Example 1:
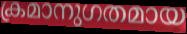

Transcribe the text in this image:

ക്രമാനുഗതമായ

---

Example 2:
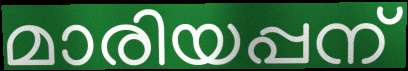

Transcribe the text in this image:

മാരിയപ്പന്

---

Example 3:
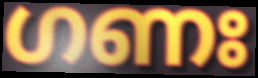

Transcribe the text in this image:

ഗണഃ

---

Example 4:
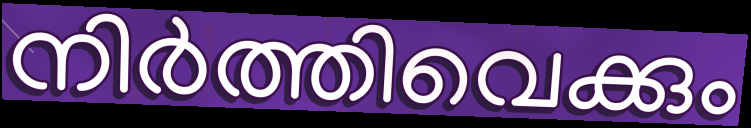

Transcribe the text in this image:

നിർത്തിവെക്കും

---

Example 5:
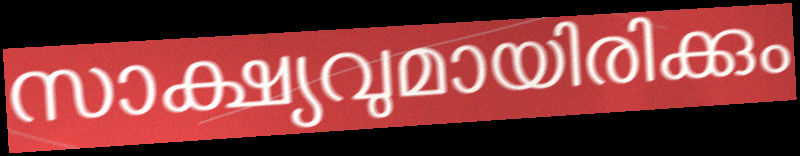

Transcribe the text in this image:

സാക്ഷ്യവുമായിരിക്കും